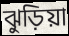
ঝুড়িয়া